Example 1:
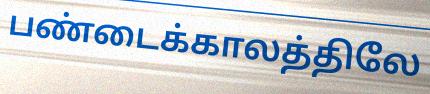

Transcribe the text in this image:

பண்டைக்காலத்திலே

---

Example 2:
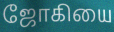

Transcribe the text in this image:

ஜோகியை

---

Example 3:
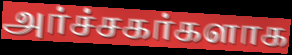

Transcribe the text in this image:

அர்ச்சகர்களாக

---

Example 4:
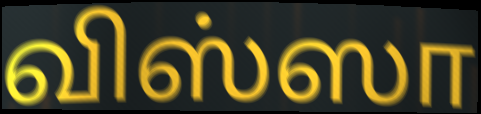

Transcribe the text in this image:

விஸ்ஸா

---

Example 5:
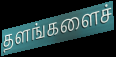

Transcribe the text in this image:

தளங்களைச்